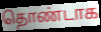
தொண்டாக